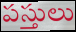
పస్తులు